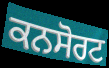
ਕਨਸੋਰਟ